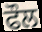
ਫੌਲ